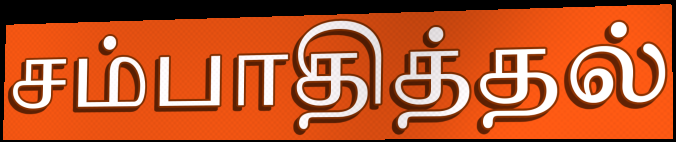
சம்பாதித்தல்